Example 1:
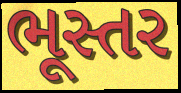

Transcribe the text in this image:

ભૂસ્તર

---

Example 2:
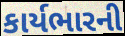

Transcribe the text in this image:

કાર્યભારની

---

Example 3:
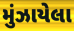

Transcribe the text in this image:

મુંઝાયેલા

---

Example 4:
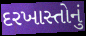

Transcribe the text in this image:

દરખાસ્તોનું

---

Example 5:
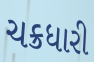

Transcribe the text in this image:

ચક્રધારી